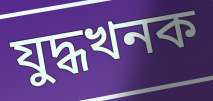
যুদ্ধখনক